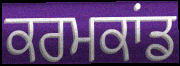
ਕਰਮਕਾਂਡ